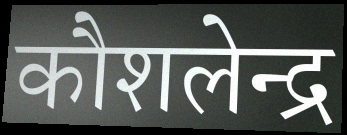
कौशलेन्द्र